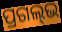
ପ୍ରଗଲ୍‌ଭ